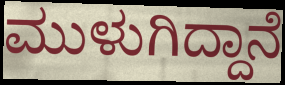
ಮುಳುಗಿದ್ದಾನೆ